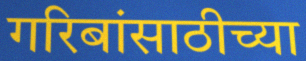
गरिबांसाठीच्या